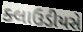
ક્લાઉડીયસે